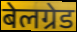
बेलग्रेड